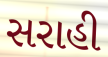
સરાહી